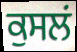
ਕੁਸਲਂ